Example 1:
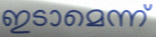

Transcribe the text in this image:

ഇടാമെന്ന്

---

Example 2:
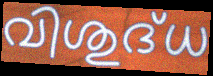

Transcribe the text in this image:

വിശുദ്‌ധ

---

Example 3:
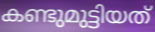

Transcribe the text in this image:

കണ്ടുമുട്ടിയത്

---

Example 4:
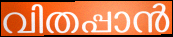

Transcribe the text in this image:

വിതപ്പാൻ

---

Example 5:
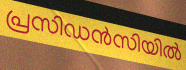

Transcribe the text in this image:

പ്രസിഡൻസിയിൽ